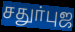
சதுர்புஜ